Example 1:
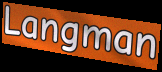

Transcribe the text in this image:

Langman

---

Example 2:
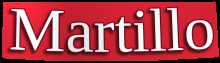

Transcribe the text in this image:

Martillo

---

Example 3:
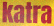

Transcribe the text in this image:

katra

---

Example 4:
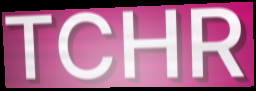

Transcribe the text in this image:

TCHR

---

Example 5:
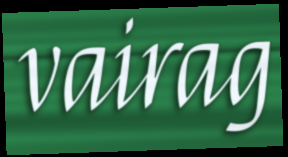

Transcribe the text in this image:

vairag